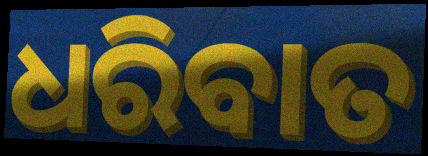
ଧରିବାତ